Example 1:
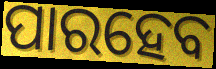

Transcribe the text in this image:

ପାରହେବ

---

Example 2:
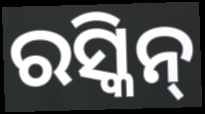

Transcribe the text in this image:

ରସ୍କିନ୍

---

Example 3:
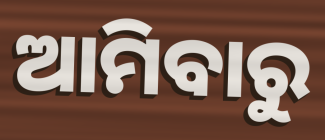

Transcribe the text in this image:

ଆମିବାରୁ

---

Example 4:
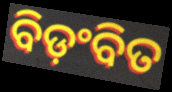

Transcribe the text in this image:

ବିଡ଼ଂବିତ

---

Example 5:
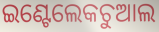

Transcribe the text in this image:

ଇଣ୍ଟେଲେକଚୁଆଲ